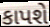
કાપશે